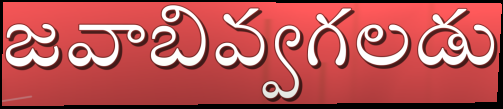
జవాబివ్వగలడు